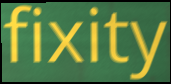
fixity